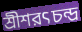
শ্রীশরৎচন্দ্র